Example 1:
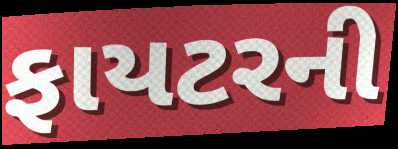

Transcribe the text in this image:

ફાયટરની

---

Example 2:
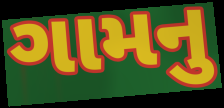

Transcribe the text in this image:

ગામનુ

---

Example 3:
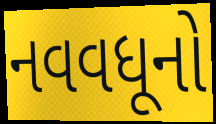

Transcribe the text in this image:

નવવધૂનો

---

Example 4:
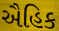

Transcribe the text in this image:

ઐહિક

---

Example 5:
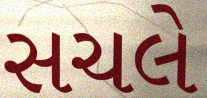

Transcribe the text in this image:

સચલે